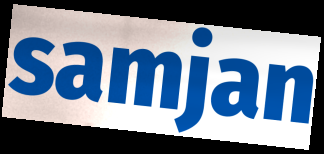
samjan